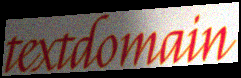
textdomain